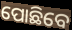
ପୋଛିବେ